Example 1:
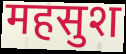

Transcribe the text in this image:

महसुश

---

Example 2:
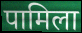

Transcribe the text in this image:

पामिला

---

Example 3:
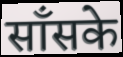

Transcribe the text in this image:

साँसके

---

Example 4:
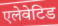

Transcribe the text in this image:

एलेवेटिड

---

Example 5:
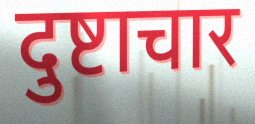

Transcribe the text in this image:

दुष्टाचार